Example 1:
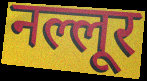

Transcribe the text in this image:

नल्लूर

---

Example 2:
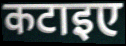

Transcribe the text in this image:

कटाइए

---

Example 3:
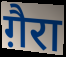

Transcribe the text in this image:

ग़ैरा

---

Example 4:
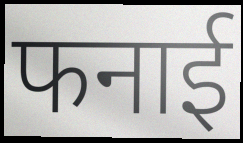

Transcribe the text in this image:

फनाई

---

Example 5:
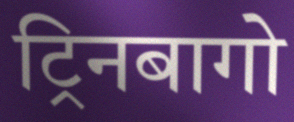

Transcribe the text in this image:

ट्रिनबागो